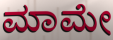
ಮಾಮೇ